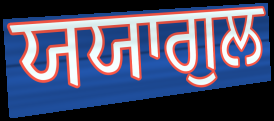
ਯਯਾਗੁਲ